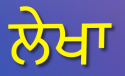
ਲੇਖਾ